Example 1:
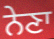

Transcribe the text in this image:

ਨੇਣਾ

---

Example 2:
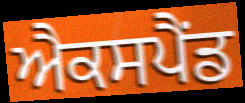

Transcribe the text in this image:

ਐਕਸਪੈਂਡ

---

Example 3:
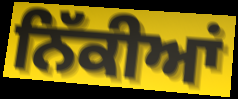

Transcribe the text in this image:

ਨਿੱਕੀਆਂ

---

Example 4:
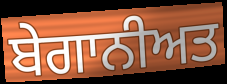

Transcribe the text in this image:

ਬੇਗਾਨੀਅਤ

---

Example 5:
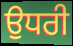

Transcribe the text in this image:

ਉਧਰੀ